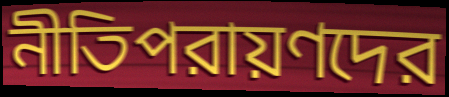
নীতিপরায়ণদের